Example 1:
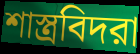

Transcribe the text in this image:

শাস্ত্রবিদরা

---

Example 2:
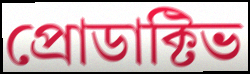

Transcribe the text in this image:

প্রোডাক্টিভ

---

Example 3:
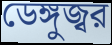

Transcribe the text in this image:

ডেঙ্গুজ্বর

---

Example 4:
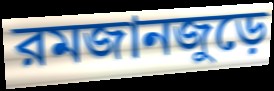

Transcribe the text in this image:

রমজানজুড়ে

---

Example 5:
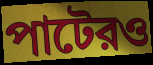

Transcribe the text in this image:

পাটেরও